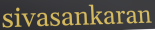
sivasankaran